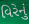
વિરેનું